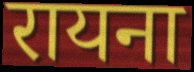
रायना